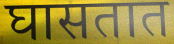
घासतात